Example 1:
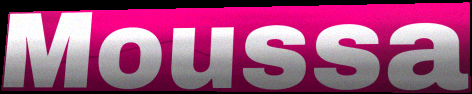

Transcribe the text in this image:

Moussa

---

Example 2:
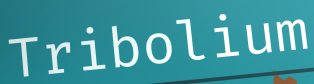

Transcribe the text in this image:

Tribolium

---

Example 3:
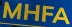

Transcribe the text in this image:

MHFA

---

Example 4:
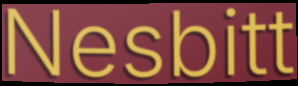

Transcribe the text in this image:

Nesbitt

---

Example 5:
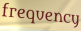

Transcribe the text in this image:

frequency